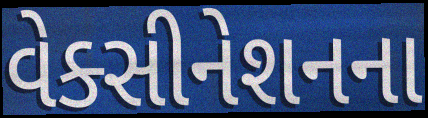
વેક્સીનેશનના